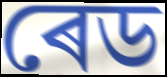
ৰেড